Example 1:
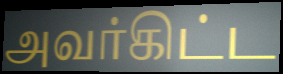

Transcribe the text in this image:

அவர்கிட்ட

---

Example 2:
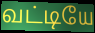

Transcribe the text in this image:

வட்டியே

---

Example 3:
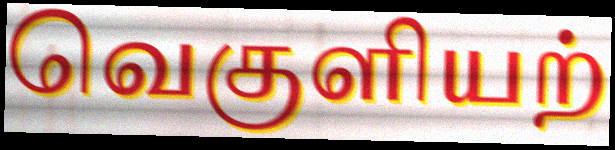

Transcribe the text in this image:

வெகுளியற்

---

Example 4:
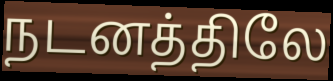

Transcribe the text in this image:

நடனத்திலே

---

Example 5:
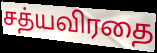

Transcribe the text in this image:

சத்யவிரதை